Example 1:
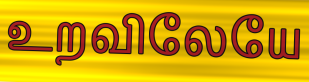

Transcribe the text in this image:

உறவிலேயே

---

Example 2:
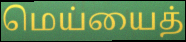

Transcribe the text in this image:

மெய்யைத்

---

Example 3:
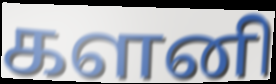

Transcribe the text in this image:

களனி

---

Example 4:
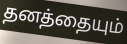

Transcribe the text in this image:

தனத்தையும்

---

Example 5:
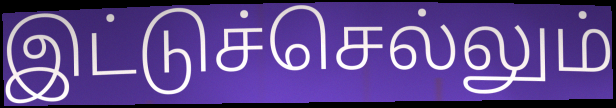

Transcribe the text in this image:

இட்டுச்செல்லும்